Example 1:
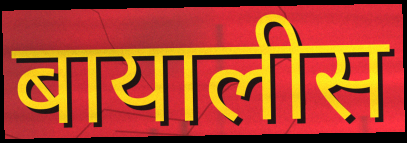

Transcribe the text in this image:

बायालीस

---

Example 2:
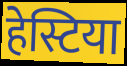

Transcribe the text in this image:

हेस्टिया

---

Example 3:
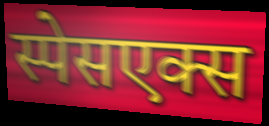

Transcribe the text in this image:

स्पेसएक्स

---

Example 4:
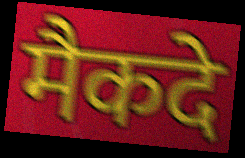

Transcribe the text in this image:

मैकदे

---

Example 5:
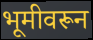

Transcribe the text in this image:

भूमीवरून